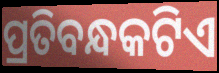
ପ୍ରତିବନ୍ଧକଟିଏ